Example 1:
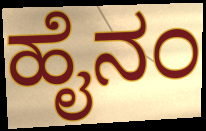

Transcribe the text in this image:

ಹೈನಂ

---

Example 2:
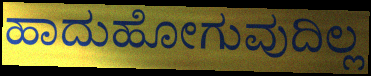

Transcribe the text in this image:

ಹಾದುಹೋಗುವುದಿಲ್ಲ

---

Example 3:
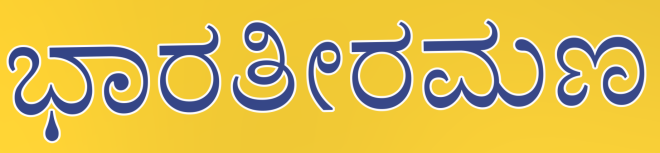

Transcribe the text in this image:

ಭಾರತೀರಮಣ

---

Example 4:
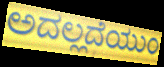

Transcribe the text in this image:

ಅದಲ್ಲದೆಯುಂ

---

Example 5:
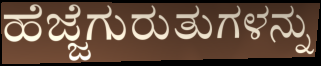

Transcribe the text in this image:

ಹೆಜ್ಜೆಗುರುತುಗಳನ್ನು